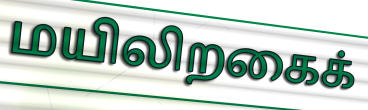
மயிலிறகைக்